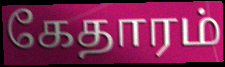
கேதாரம்